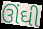
ઊંઘી